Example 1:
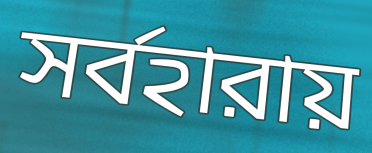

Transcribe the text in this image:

সর্বহারায়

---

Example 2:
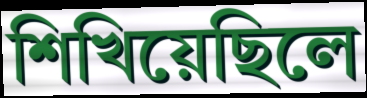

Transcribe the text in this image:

শিখিয়েছিলে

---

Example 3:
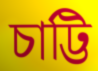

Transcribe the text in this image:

চাট্টি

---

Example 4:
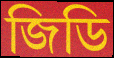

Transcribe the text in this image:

জিডি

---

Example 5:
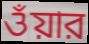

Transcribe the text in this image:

ওঁয়ার